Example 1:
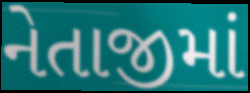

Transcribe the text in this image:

નેતાજીમાં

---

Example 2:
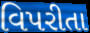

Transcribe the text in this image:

વિપરીતા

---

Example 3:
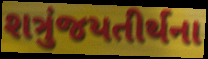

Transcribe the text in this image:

શત્રુંજયતીર્થના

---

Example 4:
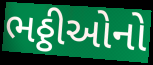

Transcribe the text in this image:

ભઠ્ઠીઓનો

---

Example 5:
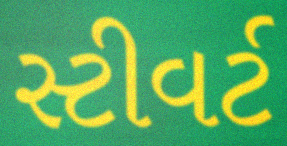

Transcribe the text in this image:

સ્ટીવર્ટ